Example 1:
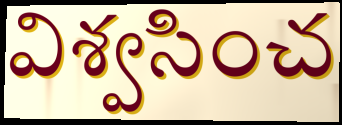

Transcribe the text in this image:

విశ్వసించ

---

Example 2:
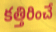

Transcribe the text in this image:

కత్తిరించే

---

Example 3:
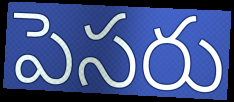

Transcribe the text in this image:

పెసరు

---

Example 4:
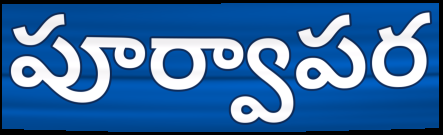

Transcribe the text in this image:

పూర్వాపర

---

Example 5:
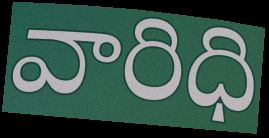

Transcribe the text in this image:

వారిధి